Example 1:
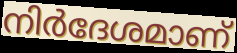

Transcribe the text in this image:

നിർദേശമാണ്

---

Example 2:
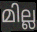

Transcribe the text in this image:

മില്ല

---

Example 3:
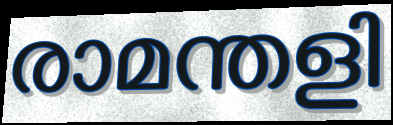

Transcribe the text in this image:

രാമന്തളി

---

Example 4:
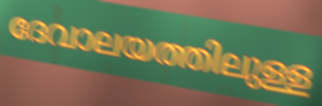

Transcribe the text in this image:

ദേവാലയത്തിലുള്ള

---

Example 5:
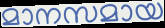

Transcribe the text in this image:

മാനസമായ